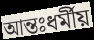
আন্তঃধর্মীয়